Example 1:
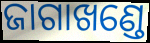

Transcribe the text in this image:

ଜାଗାଖଣ୍ଡେ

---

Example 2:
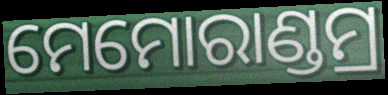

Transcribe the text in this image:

ମେମୋରାଣ୍ଡମ୍ର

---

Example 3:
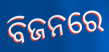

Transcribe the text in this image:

ବିଜନରେ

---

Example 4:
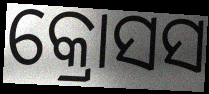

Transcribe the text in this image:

କ୍ରୋସସ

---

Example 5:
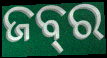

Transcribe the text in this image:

ଜବ୍‍ର